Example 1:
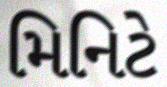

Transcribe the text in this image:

મિનિટે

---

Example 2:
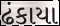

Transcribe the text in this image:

ઢંકાયા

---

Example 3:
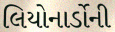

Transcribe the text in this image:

લિયોનાર્ડોની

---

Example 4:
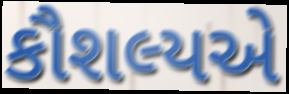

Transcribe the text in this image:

કૌશલ્યએ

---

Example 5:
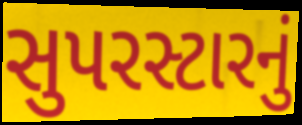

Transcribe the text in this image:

સુપરસ્ટારનું